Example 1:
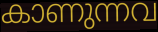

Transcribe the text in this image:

കാണുന്നവ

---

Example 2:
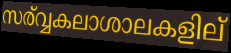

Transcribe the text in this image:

സര്വ്വകലാശാലകളില്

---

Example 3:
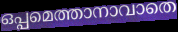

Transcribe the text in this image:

ഒപ്പമെത്താനാവാതെ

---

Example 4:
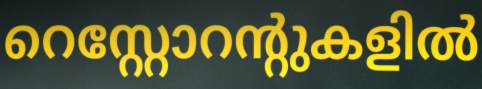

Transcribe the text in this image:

റെസ്റ്റോറന്റുകളിൽ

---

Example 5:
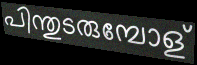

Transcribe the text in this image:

പിന്തുടരുമ്പോള്